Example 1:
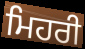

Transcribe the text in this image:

ਮਿਹਰੀ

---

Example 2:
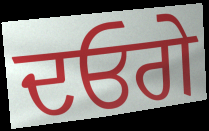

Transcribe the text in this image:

ਦਓਗੇ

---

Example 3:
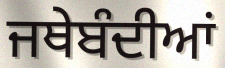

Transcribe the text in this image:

ਜਥੇਬੰਦੀਆਂ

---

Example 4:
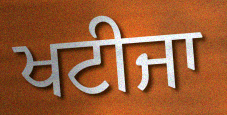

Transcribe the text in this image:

ਖਟੀਜਾ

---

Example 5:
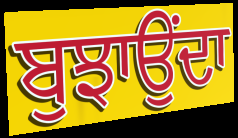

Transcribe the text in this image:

ਬੁਝਾਉਂਦਾ